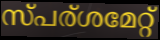
സ്പര്ശമേറ്റ്